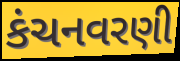
કંચનવરણી